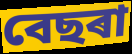
বেছৰা